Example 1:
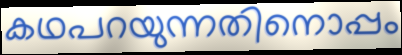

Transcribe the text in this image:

കഥപറയുന്നതിനൊപ്പം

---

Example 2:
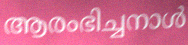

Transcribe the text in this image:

ആരംഭിച്ചനാൾ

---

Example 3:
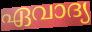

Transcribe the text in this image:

ഏവാദ്യ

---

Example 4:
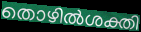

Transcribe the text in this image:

തൊഴിൽശക്തി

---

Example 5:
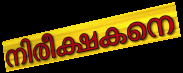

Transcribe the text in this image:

നിരീക്ഷകനെ